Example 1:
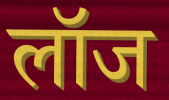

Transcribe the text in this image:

लॉज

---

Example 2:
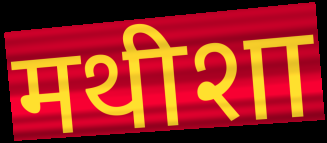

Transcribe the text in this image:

मथीशा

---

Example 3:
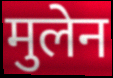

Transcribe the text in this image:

मुलेन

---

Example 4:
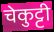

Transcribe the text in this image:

चेकुट्टी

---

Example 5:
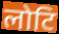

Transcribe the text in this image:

लोटि